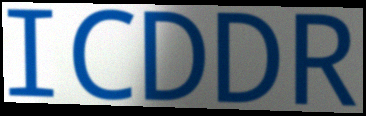
ICDDR